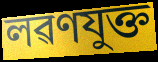
লৱণযুক্ত